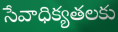
సేవాధిక్యతలకు